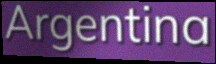
Argentina